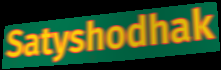
Satyshodhak